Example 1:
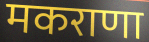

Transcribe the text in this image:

मकराणा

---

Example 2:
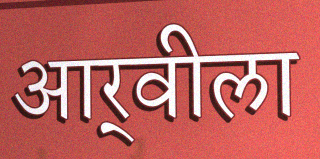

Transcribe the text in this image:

आर्वीला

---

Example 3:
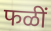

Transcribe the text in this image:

फळीं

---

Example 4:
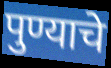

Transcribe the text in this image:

पुण्याचे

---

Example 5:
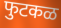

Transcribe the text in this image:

फुटकळ